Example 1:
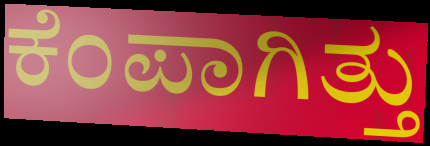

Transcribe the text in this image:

ಕೆಂಪಾಗಿತ್ತು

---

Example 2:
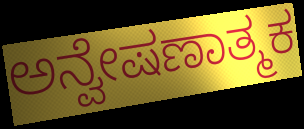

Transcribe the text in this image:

ಅನ್ವೇಷಣಾತ್ಮಕ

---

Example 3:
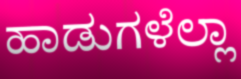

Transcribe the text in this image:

ಹಾಡುಗಳೆಲ್ಲಾ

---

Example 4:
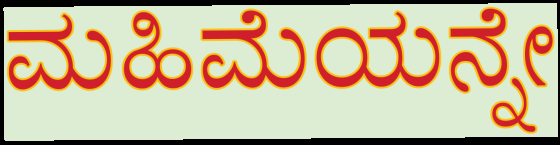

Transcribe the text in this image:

ಮಹಿಮೆಯನ್ನೇ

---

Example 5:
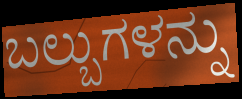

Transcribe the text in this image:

ಬಲ್ಬುಗಳನ್ನು